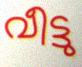
വീട്ടു